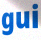
gui